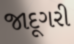
જાદૂગરી